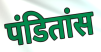
पंडितांस